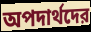
অপদার্থদের